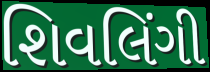
શિવલિંગી